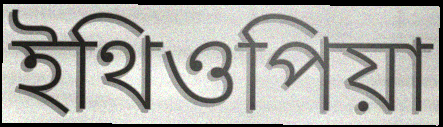
ইথিওপিয়া